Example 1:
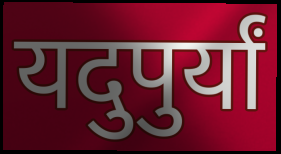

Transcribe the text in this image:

यदुपुर्यां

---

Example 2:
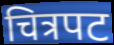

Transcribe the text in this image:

चित्रपट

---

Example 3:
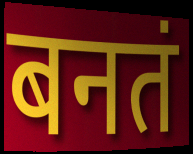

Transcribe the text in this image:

बनतं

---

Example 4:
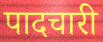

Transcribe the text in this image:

पादचारी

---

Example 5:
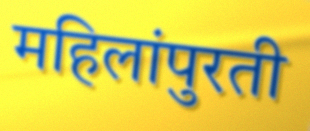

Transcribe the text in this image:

महिलांपुरती